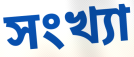
সংখ্যা